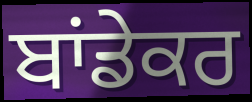
ਬਾਂਡੇਕਰ